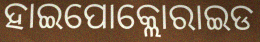
ହାଇପୋକ୍ଲୋରାଇଡ